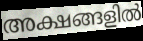
അക്ഷങ്ങളിൽ